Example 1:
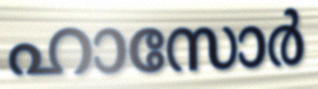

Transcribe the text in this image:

ഹാസോർ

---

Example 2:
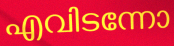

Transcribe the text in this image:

എവിടന്നോ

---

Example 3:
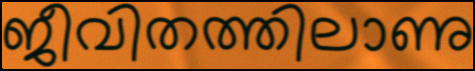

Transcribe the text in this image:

ജീവിതത്തിലാണു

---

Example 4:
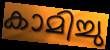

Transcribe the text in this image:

കാമിച്ചു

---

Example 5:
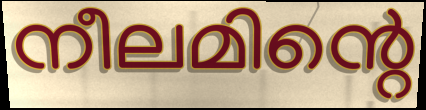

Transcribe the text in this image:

നീലമിന്റെ